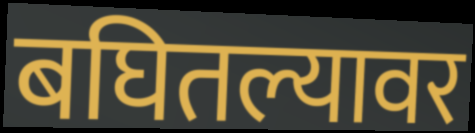
बघितल्यावर